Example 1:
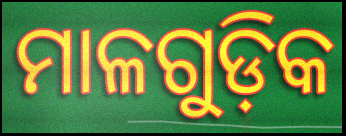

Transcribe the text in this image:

ମାଳଗୁଡ଼ିକ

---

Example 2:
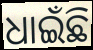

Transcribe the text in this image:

ଧାଇଁଛି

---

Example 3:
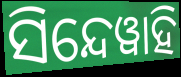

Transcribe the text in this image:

ସିନ୍ଦେୱାହି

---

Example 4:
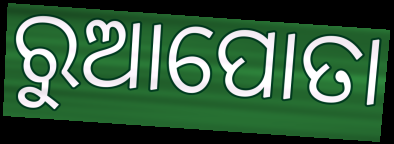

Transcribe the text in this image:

ରୁଆପୋତା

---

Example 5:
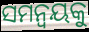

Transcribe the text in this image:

ସମନ୍ବୟକୁ